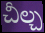
చీల్చ